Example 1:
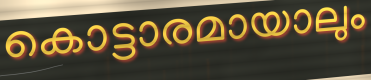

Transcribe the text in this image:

കൊട്ടാരമായാലും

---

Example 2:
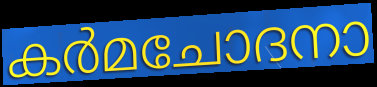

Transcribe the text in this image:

കർമചോദനാ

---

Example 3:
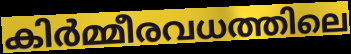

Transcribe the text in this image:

കിർമ്മീരവധത്തിലെ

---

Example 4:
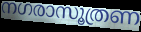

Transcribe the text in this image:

നഗരാസൂത്രണ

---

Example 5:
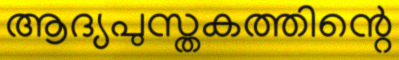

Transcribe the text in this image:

ആദ്യപുസ്തകത്തിന്റെ